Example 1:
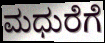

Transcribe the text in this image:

ಮಧುರೆಗೆ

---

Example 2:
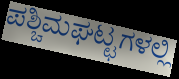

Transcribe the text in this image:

ಪಶ್ಚಿಮಘಟ್ಟಗಳಲ್ಲಿ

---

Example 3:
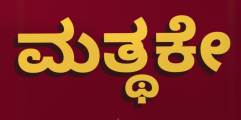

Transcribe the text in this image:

ಮತ್ಥಕೇ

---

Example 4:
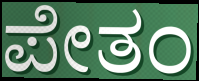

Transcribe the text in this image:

ಪೇತಂ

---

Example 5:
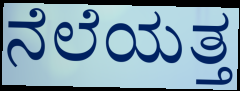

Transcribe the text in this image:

ನೆಲೆಯತ್ತ